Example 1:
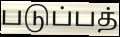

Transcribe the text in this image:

படுப்பத்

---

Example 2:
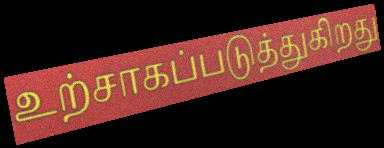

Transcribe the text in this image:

உற்சாகப்படுத்துகிறது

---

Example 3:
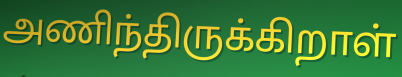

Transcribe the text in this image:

அணிந்திருக்கிறாள்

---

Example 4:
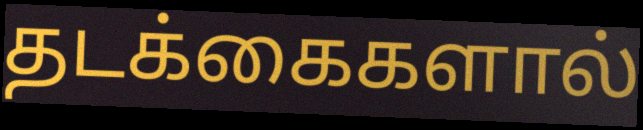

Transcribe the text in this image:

தடக்கைகளால்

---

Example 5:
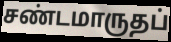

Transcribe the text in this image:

சண்டமாருதப்